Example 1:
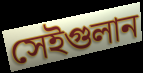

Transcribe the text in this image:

সেইগুলান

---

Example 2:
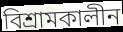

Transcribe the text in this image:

বিশ্রামকালীন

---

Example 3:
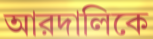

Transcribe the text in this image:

আরদালিকে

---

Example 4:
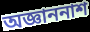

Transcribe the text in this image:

অজ্ঞাননাশ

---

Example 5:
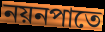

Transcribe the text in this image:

নয়নপাতে